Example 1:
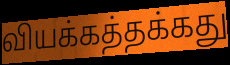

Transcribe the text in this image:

வியக்கத்தக்கது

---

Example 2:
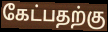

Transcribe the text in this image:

கேட்பதற்கு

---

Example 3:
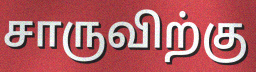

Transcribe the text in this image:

சாருவிற்கு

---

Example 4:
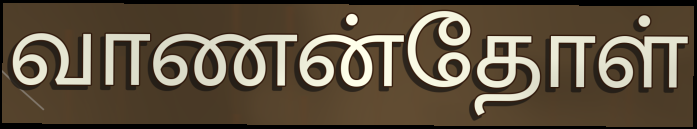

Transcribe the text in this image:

வாணன்தோள்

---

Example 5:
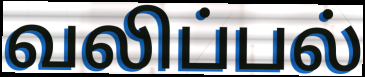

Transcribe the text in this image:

வலிப்பல்